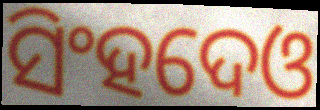
ସିଂହଦେଓ